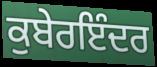
ਕੁਬੇਰਇੰਦਰ